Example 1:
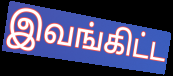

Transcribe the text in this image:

இவங்கிட்ட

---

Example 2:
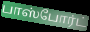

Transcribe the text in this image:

பாஸ்போர்ட்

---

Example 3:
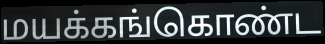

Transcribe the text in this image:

மயக்கங்கொண்ட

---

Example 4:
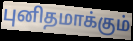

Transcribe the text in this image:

புனிதமாக்கும்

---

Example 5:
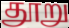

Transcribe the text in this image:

தூறு